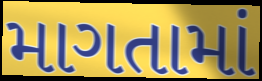
માગતામાં